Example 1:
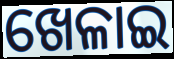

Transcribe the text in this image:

ଖେଳାଇ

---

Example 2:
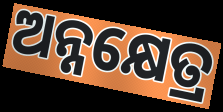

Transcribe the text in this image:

ଅନ୍ନକ୍ଷେତ୍ର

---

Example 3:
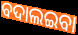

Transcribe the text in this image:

ବଦାଲଇବା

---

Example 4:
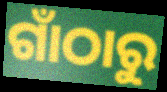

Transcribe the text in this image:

ଗାଁଠାରୁ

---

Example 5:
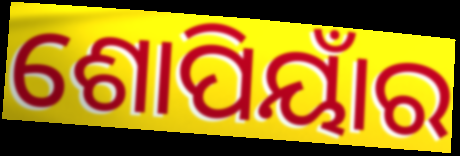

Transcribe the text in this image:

ଶୋପିୟାଁର